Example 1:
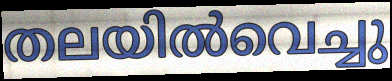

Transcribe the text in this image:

തലയിൽവെച്ചു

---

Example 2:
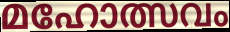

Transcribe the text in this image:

മഹോത്സവം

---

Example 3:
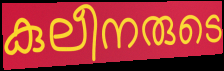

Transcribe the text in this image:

കുലീനരുടെ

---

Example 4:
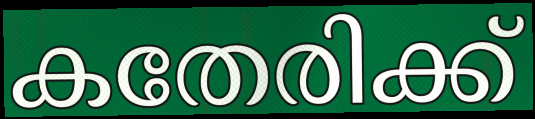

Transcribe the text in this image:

കതേരിക്ക്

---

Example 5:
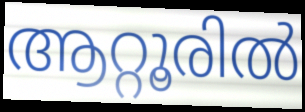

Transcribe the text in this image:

ആറ്റൂരിൽ